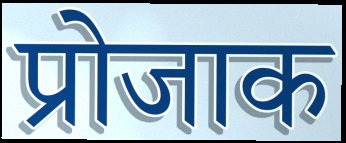
प्रोजाक